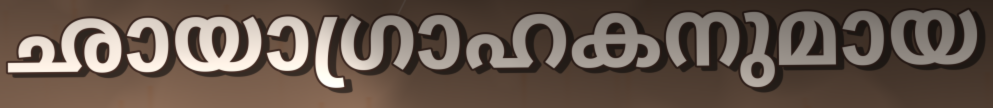
ഛായാഗ്രാഹകനുമായ